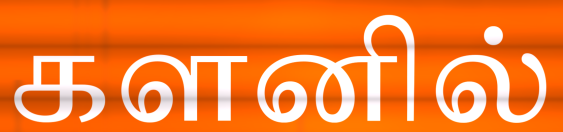
களனில்